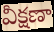
వీక్షణా